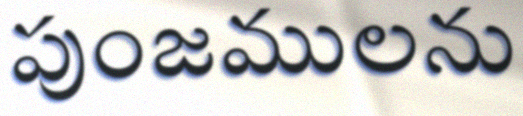
పుంజములను